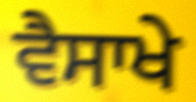
ਵੈਸਾਖੇ